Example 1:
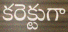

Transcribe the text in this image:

కరెక్టుగా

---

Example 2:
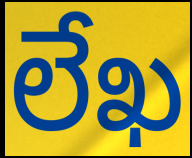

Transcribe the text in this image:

లేఖ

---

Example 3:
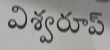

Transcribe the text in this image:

విశ్వరూప్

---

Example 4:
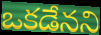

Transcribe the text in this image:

ఒకడేనని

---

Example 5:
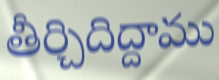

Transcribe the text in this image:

తీర్చిదిద్దాము